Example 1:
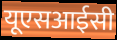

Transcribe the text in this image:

यूएसआईसी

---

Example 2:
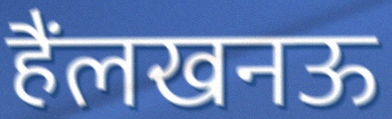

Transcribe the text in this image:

हैंलखनऊ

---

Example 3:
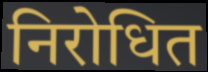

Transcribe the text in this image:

निरोधित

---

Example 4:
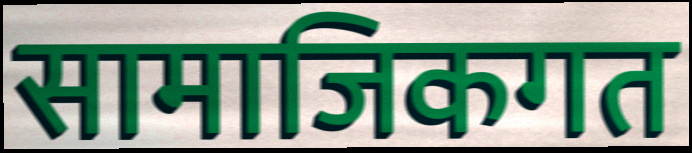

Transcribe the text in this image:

सामाजिकगत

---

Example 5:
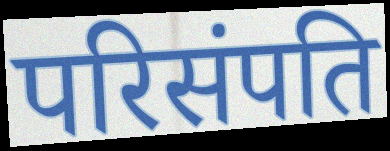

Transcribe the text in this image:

परिसंपति